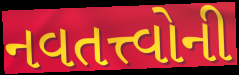
નવતત્ત્વોની